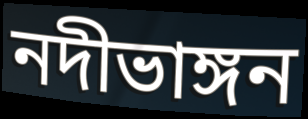
নদীভাঙ্গন